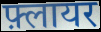
फ़्लायर